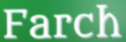
Farch